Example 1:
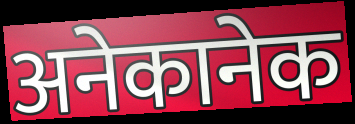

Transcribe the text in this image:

अनेकानेक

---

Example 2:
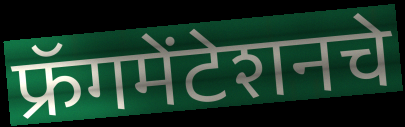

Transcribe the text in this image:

फ्रॅगमेंटेशनचे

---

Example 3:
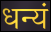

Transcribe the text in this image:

धन्यं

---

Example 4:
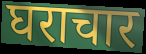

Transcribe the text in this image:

घराचार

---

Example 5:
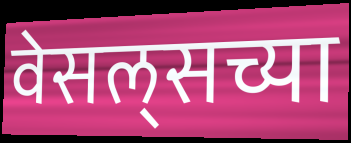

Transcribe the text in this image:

वेसल्सच्या